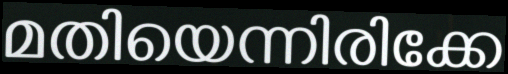
മതിയെന്നിരിക്കേ